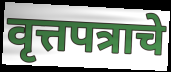
वृत्तपत्राचे